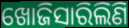
ଖୋଜିସାରିଲିଣି